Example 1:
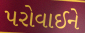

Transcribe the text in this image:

પરોવાઈને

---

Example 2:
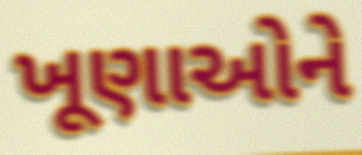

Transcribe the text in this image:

ખૂણાઓને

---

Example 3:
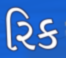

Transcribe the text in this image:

રિક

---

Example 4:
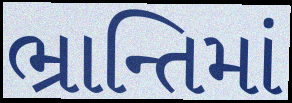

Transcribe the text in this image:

ભ્રાન્તિમાં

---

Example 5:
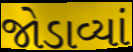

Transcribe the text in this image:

જોડાવ્યાં